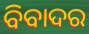
ବିବାଦର